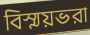
বিস্ময়ভরা